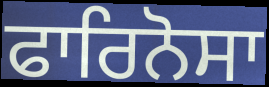
ਫਾਰਿਨੋਸਾ